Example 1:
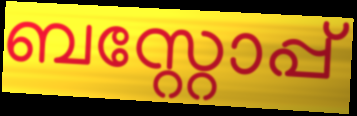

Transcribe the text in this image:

ബസ്റ്റോപ്പ്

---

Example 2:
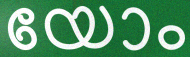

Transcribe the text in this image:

യോം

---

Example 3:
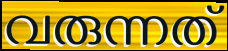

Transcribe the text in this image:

വരുന്നത്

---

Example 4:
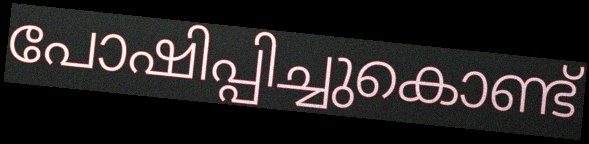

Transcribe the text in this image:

പോഷിപ്പിച്ചുകൊണ്ട്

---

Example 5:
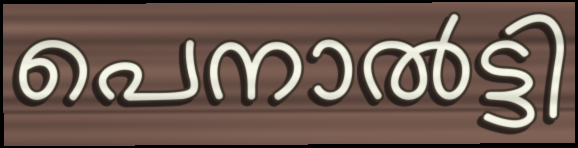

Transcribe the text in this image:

പെനാൽട്ടി